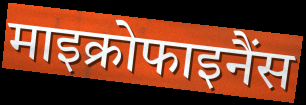
माइक्रोफाइनैंस